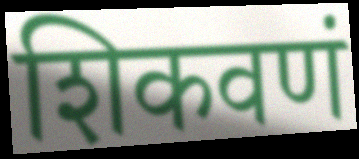
शिकवणं